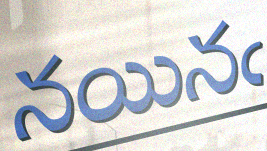
నయినఁ